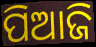
ପିଆଜି